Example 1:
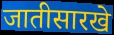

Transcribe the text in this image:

जातीसारखे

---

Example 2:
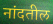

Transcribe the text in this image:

नांदतील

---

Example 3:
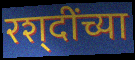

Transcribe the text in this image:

रश्दींच्या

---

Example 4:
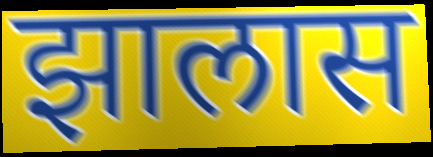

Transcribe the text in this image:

झालास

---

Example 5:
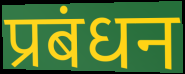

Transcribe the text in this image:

प्रबंधन